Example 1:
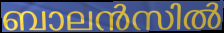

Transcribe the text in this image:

ബാലൻസിൽ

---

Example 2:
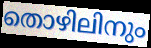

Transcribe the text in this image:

തൊഴിലിനും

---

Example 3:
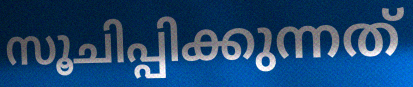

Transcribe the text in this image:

സൂചിപ്പിക്കുന്നത്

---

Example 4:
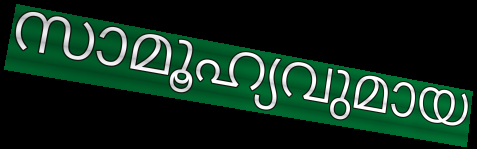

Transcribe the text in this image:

സാമൂഹ്യവുമായ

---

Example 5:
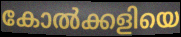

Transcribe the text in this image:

കോൽക്കളിയെ